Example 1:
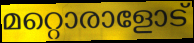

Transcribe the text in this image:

മറ്റൊരാളോട്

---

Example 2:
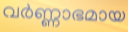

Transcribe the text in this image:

വർണ്ണാഭമായ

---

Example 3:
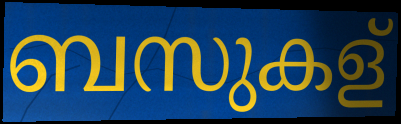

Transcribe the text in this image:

ബസുകള്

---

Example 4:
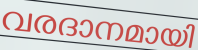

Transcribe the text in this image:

വരദാനമായി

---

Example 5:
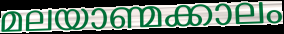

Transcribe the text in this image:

മലയാണ്മക്കാലം